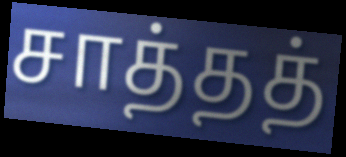
சாத்தத்